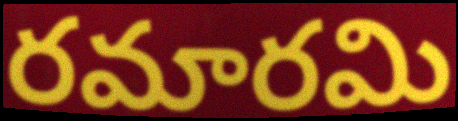
రమారమి